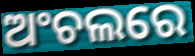
ଅଂଚଲରେ